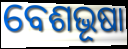
ବେଶଭୂଷା